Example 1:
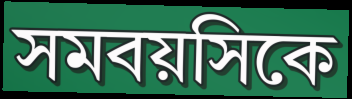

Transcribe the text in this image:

সমবয়সিকে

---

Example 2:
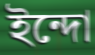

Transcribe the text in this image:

ইন্দো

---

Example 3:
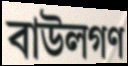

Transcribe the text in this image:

বাউলগণ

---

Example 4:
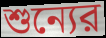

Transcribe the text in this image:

শুন্যের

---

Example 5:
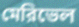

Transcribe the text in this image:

মেরিভেল